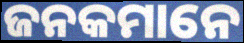
ଜନକମାନେ